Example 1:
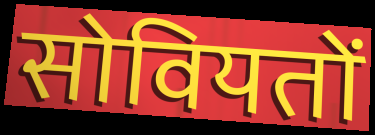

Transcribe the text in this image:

सोवियतों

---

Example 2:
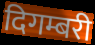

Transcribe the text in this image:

दिगम्बरी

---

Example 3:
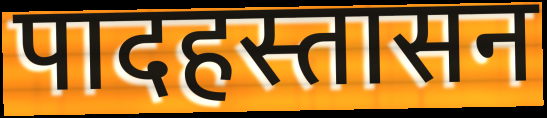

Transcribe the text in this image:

पादहस्तासन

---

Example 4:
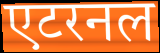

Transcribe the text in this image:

एटरनल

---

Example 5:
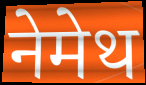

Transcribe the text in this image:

नेमेथ